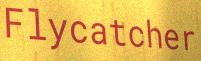
Flycatcher